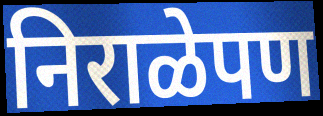
निराळेपण